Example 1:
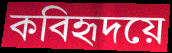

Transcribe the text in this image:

কবিহৃদয়ে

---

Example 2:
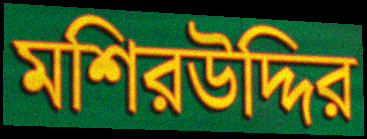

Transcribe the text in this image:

মশিরউদ্দির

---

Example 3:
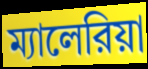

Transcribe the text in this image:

ম্যালেরিয়া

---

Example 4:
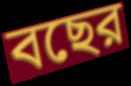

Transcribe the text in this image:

বছের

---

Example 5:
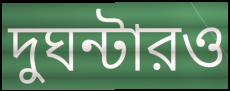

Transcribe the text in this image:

দুঘন্টারও